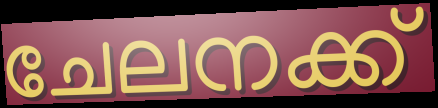
ചേലനക്ക്